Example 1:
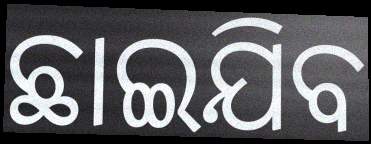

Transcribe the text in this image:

ଛାଇଯିବ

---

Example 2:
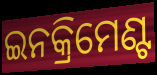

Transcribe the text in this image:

ଇନକ୍ରିମେଣ୍ଟ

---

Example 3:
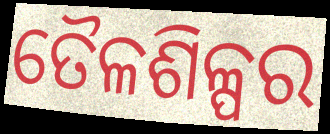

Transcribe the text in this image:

ତୈଳଶିଳ୍ପର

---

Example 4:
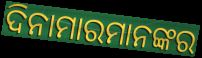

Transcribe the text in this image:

ଦିନାମାରମାନଙ୍କର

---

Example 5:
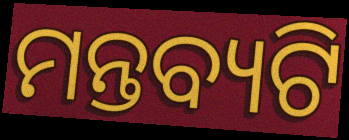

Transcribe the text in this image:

ମନ୍ତବ୍ୟଟି